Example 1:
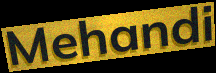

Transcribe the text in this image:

Mehandi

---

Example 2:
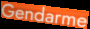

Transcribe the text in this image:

Gendarme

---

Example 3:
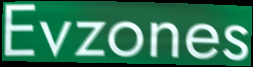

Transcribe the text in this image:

Evzones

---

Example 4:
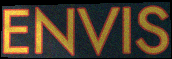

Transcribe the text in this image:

ENVIS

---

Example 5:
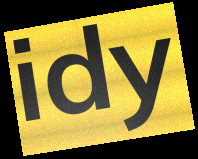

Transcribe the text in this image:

idy